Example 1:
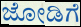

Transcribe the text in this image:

ಜೋಡಿಗೆ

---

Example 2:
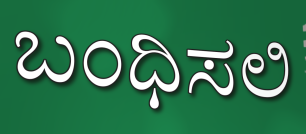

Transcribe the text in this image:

ಬಂಧಿಸಲಿ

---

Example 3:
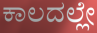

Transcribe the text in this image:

ಕಾಲದಲ್ಲೇ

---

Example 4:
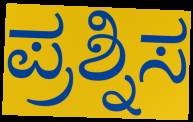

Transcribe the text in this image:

ಪ್ರಶ್ನಿಸ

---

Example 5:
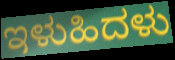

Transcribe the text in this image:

ಇಳುಹಿದಳು